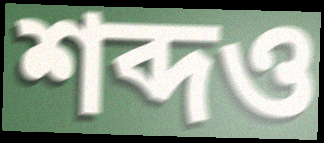
শব্দও